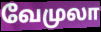
வேமுலா